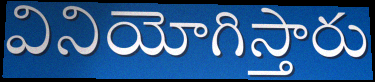
వినియోగిస్తారు